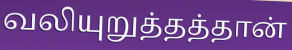
வலியுறுத்தத்தான்